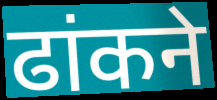
ढांकने